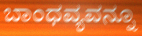
ಬಾಂಧವ್ಯವನ್ನೂ